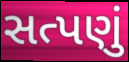
સત્પણું